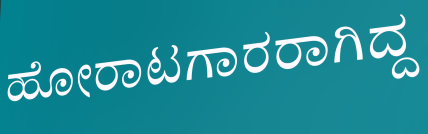
ಹೋರಾಟಗಾರರಾಗಿದ್ದ